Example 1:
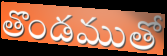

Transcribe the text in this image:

తొండముతో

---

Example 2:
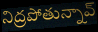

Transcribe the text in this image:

నిద్రపోతున్నావ్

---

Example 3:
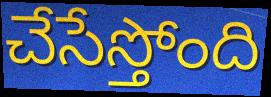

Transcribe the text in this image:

చేసేస్తోంది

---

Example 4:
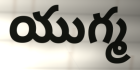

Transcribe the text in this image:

యుగ్మ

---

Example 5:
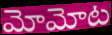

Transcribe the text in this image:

మోమోట